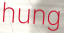
hung